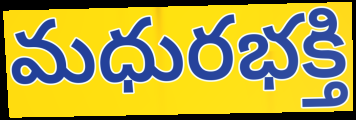
మధురభక్తి